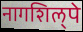
नागशिल्पे